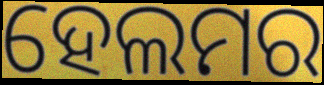
ହେଲମର